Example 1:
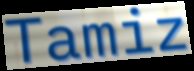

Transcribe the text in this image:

Tamiz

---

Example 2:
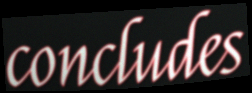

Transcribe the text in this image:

concludes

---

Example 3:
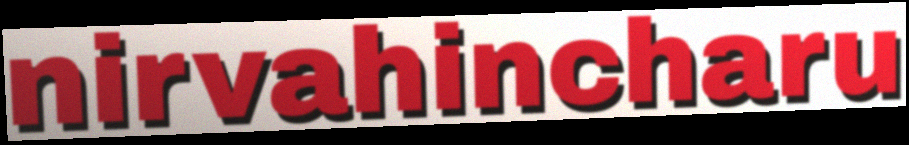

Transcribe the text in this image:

nirvahincharu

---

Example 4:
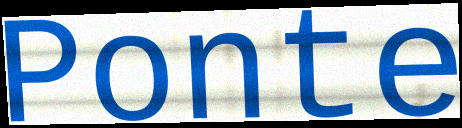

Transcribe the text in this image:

Ponte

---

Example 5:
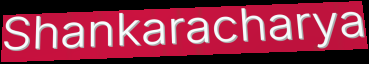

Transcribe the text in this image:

Shankaracharya